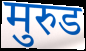
मुरुड